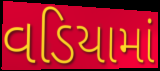
વડિયામાં